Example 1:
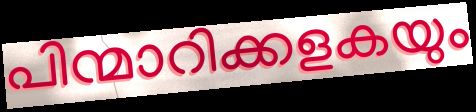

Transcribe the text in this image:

പിന്മാറിക്കളകയും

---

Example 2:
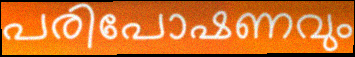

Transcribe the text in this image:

പരിപോഷണവും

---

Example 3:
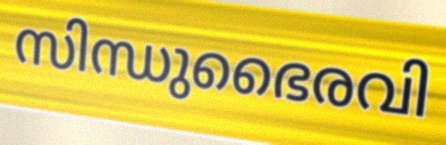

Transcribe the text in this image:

സിന്ധുഭൈരവി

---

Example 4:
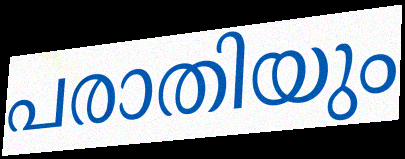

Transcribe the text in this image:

പരാതിയും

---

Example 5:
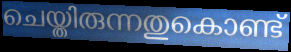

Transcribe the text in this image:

ചെയ്തിരുന്നതുകൊണ്ട്